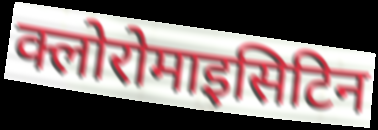
क्लोरोमाइसिटिन